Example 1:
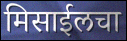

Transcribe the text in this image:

मिसाईलचा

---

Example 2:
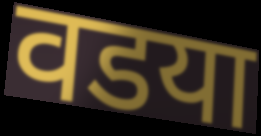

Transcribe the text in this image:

वडया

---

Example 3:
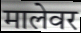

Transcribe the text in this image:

मालेवर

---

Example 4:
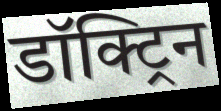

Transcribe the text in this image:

डॉक्ट्रिन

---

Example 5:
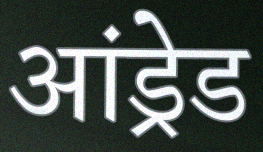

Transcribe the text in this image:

आंड्रेड